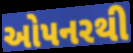
ઓપનરથી